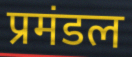
प्रमंडल